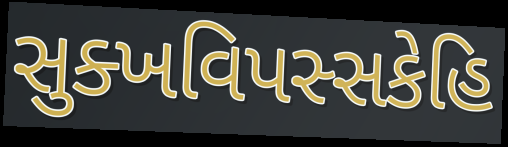
સુક્ખવિપસ્સકેહિ